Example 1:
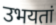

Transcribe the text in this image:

उभयतां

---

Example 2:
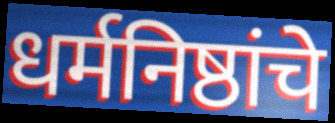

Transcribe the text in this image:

धर्मनिष्ठांचे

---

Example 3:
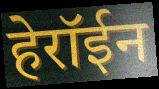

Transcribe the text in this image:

हेरॉईन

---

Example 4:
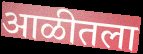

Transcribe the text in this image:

आळीतला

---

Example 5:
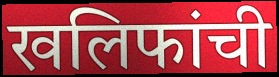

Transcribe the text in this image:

खलिफांची